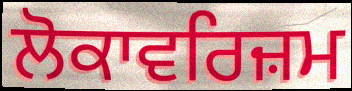
ਲੋਕਾਵਰਿਜ਼ਮ